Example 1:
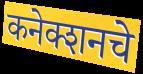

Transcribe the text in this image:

कनेक्शनचे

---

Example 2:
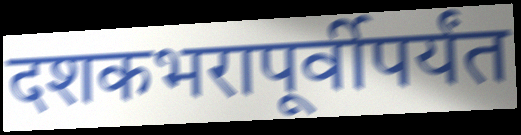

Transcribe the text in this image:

दशकभरापूर्वीपर्यंत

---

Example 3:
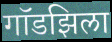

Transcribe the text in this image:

गॉडझिला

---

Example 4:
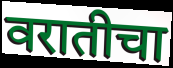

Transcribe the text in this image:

वरातीचा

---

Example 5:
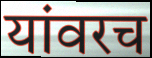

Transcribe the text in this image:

यांवरच